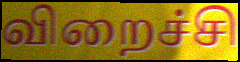
விறைச்சி